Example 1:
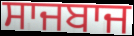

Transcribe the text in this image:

ਸਾਜਬਾਜ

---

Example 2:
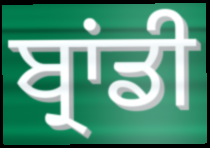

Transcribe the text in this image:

ਬ੍ਰਾਂਡੀ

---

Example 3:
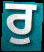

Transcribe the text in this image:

ਰੁ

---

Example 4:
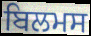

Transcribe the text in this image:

ਬਿਲਮਸ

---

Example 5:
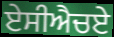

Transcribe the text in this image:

ਏਸੀਐਚਏ